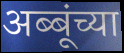
अब्बूंच्या